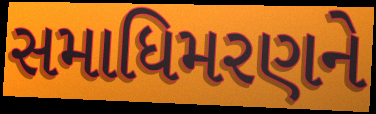
સમાધિમરણને